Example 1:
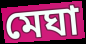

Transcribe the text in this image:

মেঘা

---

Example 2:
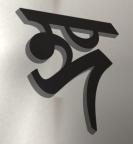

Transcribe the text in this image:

ঙ্গ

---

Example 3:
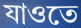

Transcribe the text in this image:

যাওতে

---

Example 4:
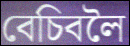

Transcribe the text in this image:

বেচিবলৈ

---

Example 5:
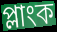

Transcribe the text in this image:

প্লাংক